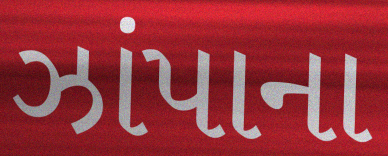
ઝાંપાના